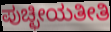
ಪುಚ್ಛೀಯತೀತಿ